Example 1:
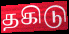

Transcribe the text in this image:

தகிடு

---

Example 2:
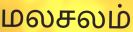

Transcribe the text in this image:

மலசலம்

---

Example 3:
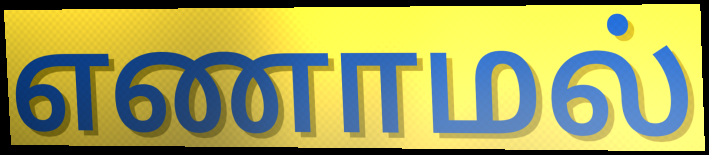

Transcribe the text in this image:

எணாமல்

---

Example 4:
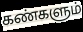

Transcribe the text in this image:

கண்களும்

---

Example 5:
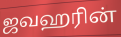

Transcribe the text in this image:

ஜவஹரின்